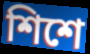
শিশে